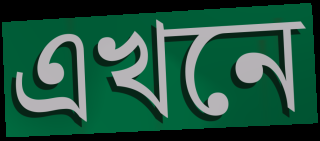
এখনে